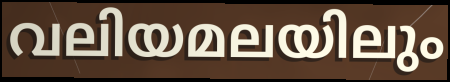
വലിയമലയിലും